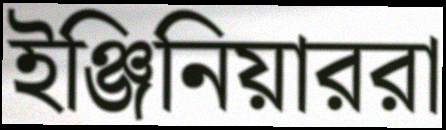
ইঞ্জিনিয়াররা